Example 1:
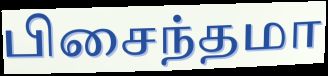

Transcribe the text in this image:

பிசைந்தமா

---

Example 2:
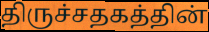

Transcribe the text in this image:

திருச்சதகத்தின்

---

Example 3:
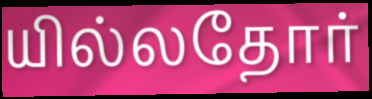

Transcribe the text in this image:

யில்லதோர்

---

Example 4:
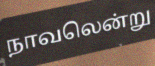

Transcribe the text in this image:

நாவலென்று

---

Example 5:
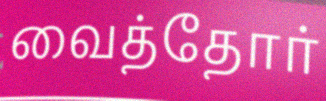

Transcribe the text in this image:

வைத்தோர்